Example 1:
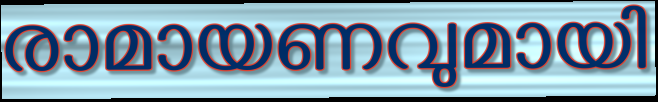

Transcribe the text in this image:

രാമായണവുമായി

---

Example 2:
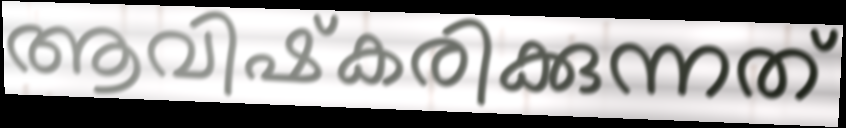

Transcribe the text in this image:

ആവിഷ്‌കരിക്കുന്നത്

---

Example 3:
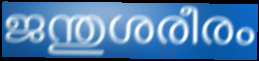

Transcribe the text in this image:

ജന്തുശരീരം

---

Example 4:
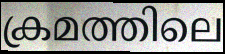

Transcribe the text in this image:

ക്രമത്തിലെ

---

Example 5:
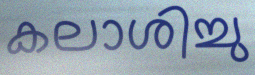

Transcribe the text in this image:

കലാശിച്ചു